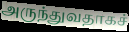
அருந்துவதாகச்